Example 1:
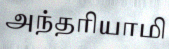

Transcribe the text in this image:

அந்தரியாமி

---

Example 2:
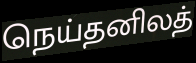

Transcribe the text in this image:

நெய்தனிலத்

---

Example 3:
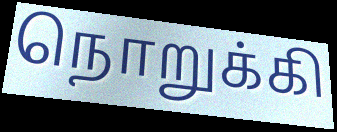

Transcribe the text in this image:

நொறுக்கி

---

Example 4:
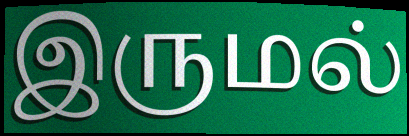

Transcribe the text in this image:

இருமல்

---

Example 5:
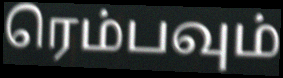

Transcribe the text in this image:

ரெம்பவும்